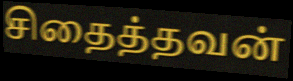
சிதைத்தவன்